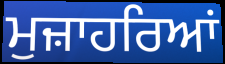
ਮੁਜ਼ਾਹਰਿਆਂ